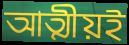
আত্মীয়ই